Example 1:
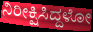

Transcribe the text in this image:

ನಿರೀಕ್ಷಿಸಿದ್ದಳೋ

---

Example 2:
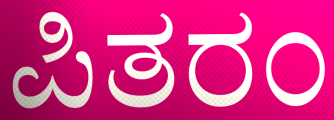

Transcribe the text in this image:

ಪಿತರಂ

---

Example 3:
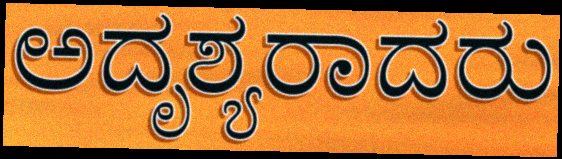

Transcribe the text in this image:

ಅದೃಶ್ಯರಾದರು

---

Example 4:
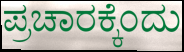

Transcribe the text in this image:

ಪ್ರಚಾರಕ್ಕೆಂದು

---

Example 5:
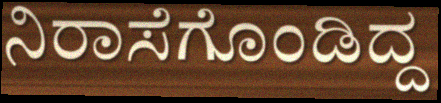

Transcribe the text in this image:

ನಿರಾಸೆಗೊಂಡಿದ್ದ